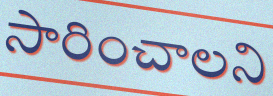
సారించాలని